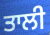
ਤਾਲੀ